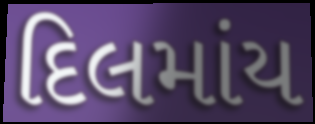
દિલમાંય